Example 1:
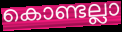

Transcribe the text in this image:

കൊണ്ടല്ലാ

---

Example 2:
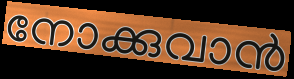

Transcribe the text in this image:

നോക്കുവാൻ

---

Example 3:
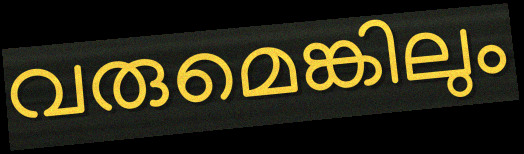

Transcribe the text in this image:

വരുമെങ്കിലും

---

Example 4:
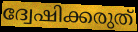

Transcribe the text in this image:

ദ്വേഷിക്കരുത്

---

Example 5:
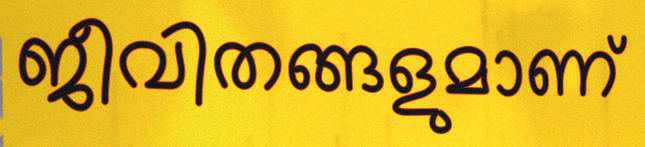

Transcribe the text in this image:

ജീവിതങ്ങളുമാണ്